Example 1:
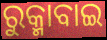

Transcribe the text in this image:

ରୁକ୍ମାବାଇ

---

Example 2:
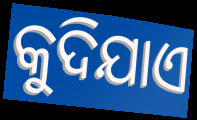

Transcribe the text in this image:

କୁଦିଯାଏ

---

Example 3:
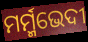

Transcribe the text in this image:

ମର୍ମ୍ମଭେଦୀ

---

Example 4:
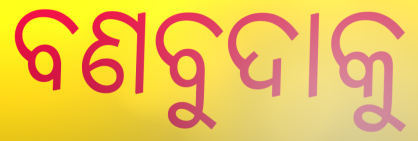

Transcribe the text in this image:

ବଣବୁଦାକୁ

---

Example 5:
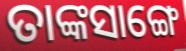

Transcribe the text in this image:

ତାଙ୍କସାଙ୍ଗେ